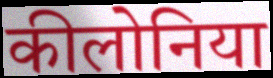
कीलोनिया